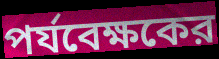
পর্যবেক্ষকের